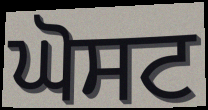
ਘੋਸਟ